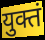
युक्तं